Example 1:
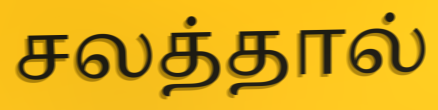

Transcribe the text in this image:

சலத்தால்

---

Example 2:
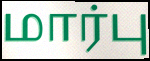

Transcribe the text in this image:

மார்பு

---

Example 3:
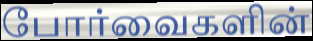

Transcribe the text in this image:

போர்வைகளின்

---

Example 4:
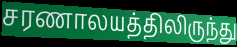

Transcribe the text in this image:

சரணாலயத்திலிருந்து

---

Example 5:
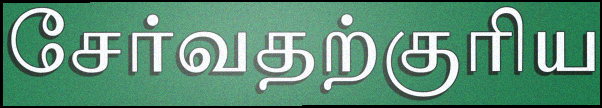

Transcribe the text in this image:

சேர்வதற்குரிய